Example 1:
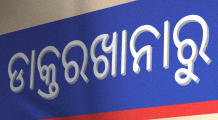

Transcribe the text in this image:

ଡାକ୍ତରଖାନାରୁ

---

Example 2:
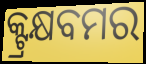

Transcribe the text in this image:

କ୍ଟ୍ରକ୍ଷବମର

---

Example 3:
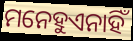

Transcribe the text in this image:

ମନେହୁଏନାହିଁ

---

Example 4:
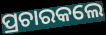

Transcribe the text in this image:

ପ୍ରଚାରକଲେ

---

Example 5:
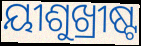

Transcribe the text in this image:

ୟୀଶୁଖ୍ରୀଷ୍ଟ